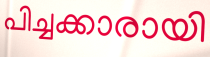
പിച്ചക്കാരായി